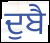
ਦੁਬੈ